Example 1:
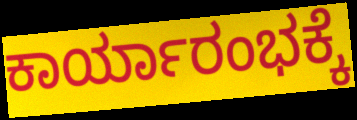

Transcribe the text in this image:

ಕಾರ್ಯಾರಂಭಕ್ಕೆ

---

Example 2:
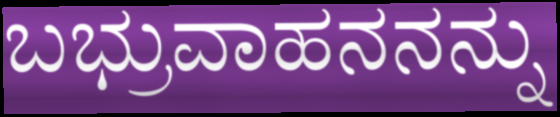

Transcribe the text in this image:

ಬಭ್ರುವಾಹನನನ್ನು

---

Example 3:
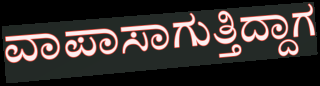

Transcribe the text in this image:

ವಾಪಾಸಾಗುತ್ತಿದ್ದಾಗ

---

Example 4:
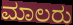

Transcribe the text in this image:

ಮಾಲರು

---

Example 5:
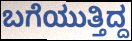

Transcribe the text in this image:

ಬಗೆಯುತ್ತಿದ್ದ